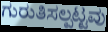
ಗುರುತಿಸಲ್ಪಟ್ಟವು